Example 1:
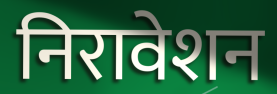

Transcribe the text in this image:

निरावेशन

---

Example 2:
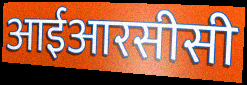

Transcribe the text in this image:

आईआरसीसी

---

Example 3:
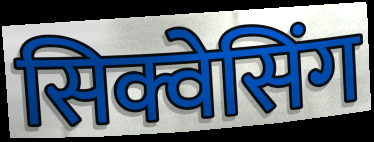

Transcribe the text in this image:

सिक्वेसिंग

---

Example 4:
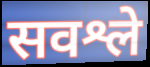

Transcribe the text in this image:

सवश्ले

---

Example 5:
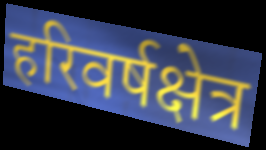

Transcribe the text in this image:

हरिवर्षक्षेत्र